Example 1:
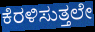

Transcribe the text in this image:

ಕೆರಳಿಸುತ್ತಲೇ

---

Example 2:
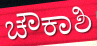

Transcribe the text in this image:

ಚೌಕಾಶಿ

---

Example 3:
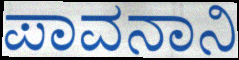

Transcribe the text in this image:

ಪಾವನಾನಿ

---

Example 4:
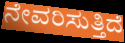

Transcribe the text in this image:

ನೇವರಿಸುತ್ತಿದೆ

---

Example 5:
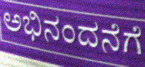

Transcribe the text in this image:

ಅಭಿನಂದನೆಗೆ